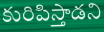
కురిపిస్తాడని